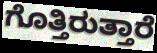
ಗೊತ್ತಿರುತ್ತಾರೆ